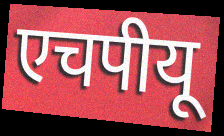
एचपीयू